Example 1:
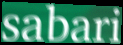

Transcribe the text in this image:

sabari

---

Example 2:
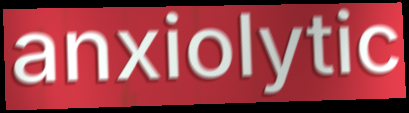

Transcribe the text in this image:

anxiolytic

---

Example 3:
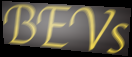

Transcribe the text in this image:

BEVs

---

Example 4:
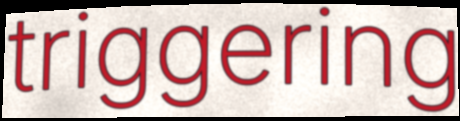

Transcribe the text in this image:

triggering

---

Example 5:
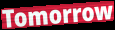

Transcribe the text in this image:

Tomorrow